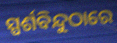
ସ୍ପର୍ଶବିନ୍ଦୁଠାରେ